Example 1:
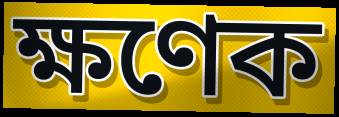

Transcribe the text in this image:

ক্ষণেক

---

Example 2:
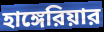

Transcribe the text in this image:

হাঙ্গেরিয়ার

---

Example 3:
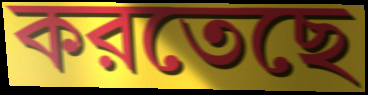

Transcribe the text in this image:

করতেছে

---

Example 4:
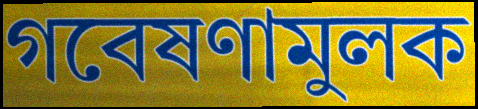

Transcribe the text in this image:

গবেষণামুলক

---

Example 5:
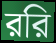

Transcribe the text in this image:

ররি